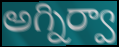
అగ్నిర్వా